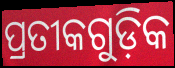
ପ୍ରତୀକଗୁଡ଼ିକ